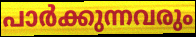
പാർക്കുന്നവരും